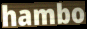
hambo